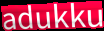
adukku